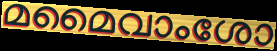
മമൈവാംശോ